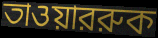
তাওয়াররুক